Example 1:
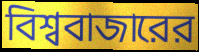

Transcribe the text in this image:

বিশ্ববাজারের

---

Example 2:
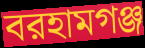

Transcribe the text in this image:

বরহামগঞ্জ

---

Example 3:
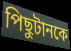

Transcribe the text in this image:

পিছুটানকে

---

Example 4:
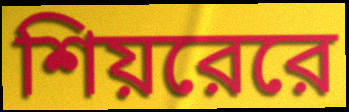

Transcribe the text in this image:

শিয়রেরে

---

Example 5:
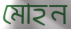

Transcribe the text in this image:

মোহন